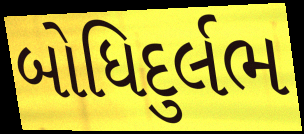
બોધિદુર્લભ